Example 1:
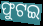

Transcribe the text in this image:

ଫୁଟଇ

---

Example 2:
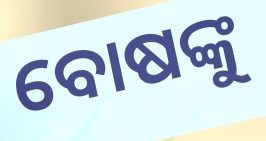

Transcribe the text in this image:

ବୋଷଙ୍କୁ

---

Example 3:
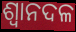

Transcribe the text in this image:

ଶ୍ୱାନଦଳ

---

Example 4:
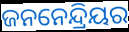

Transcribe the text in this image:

ଜନନେନ୍ଦ୍ରିୟର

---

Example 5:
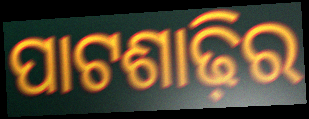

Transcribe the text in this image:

ପାଟଶାଢ଼ିର